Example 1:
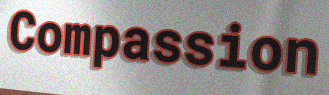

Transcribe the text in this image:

Compassion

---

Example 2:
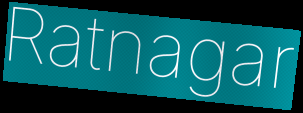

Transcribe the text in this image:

Ratnagar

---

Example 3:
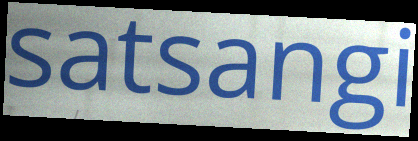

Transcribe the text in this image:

satsangi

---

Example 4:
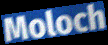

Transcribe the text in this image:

Moloch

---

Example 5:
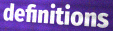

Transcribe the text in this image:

definitions